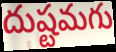
దుష్టమగు